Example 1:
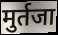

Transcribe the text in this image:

मुर्तजा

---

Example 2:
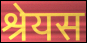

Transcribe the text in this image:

श्रेयस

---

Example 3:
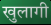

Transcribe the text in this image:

खुलागी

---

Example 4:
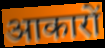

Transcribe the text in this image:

आकारों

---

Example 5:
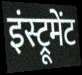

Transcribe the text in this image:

इंस्ट्रूमेंट